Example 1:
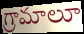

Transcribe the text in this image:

గ్రామాలూ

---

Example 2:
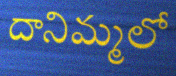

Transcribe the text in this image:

దానిమ్మలో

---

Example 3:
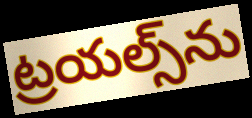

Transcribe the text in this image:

ట్రయల్స్‌ను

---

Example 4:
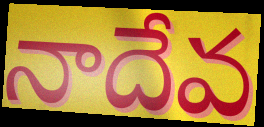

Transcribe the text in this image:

నాదేవ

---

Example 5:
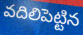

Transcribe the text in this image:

వదిలిపెట్టిన